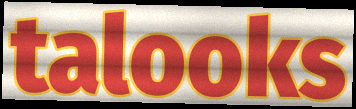
talooks